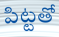
పిట్టతో